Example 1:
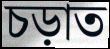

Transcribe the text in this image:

চড়াত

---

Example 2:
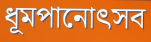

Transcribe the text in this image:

ধূমপানোৎসব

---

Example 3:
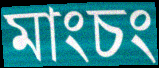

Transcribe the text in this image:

মাংচং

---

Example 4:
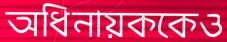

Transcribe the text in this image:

অধিনায়ককেও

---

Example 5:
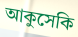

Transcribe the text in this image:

আকুসেকি